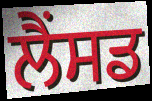
ਲੈਂਸਡ